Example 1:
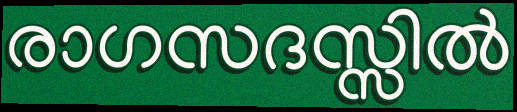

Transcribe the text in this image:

രാഗസദസ്സിൽ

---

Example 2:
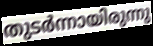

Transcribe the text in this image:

തുടർന്നായിരുന്നു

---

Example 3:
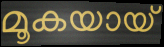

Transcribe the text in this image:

മൂകയായ്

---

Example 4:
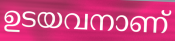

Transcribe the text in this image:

ഉടയവനാണ്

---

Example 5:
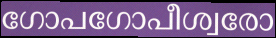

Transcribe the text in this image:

ഗോപഗോപീശ്വരോ